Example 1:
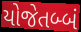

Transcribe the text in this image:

યોજેતબ્બં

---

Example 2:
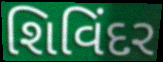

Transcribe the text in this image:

શિવિંદર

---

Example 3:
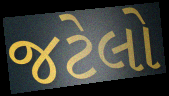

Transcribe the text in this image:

જટેલો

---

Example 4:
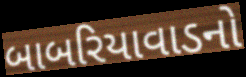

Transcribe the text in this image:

બાબરિયાવાડનો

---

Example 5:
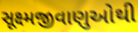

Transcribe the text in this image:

સૂક્ષ્મજીવાણુઓથી